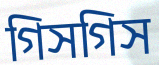
গিসগিস